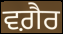
ਵਗ਼ੈਰ